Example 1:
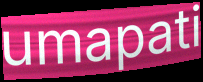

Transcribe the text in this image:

umapati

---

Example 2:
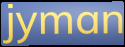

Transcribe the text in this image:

jyman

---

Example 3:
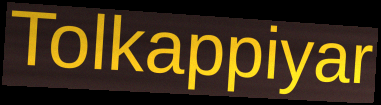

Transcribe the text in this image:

Tolkappiyar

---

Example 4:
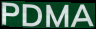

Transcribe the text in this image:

PDMA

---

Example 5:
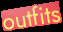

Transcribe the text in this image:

outfits